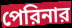
পেরিনার